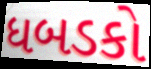
ધબડકો